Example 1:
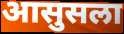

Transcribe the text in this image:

आसुसला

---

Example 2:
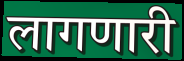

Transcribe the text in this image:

लागणारी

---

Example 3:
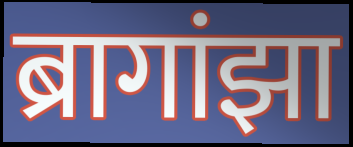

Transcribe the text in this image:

ब्रागांझा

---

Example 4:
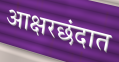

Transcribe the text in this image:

आक्षरछंदात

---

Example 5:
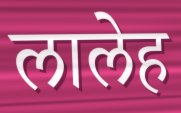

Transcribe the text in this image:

लालेह